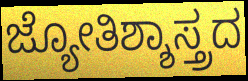
ಜ್ಯೋತಿಶ್ಶಾಸ್ತ್ರದ